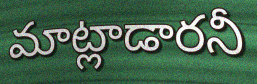
మాట్లాడారనీ